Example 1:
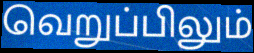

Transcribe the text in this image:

வெறுப்பிலும்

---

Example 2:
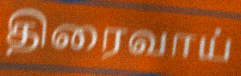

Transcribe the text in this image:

திரைவாய்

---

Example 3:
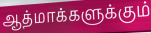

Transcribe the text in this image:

ஆத்மாக்களுக்கும்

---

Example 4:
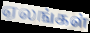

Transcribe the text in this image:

ஏலங்கள்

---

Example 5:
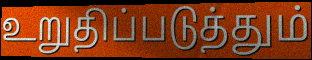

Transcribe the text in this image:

உறுதிப்படுத்தும்